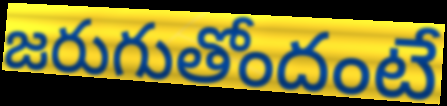
జరుగుతోందంటే